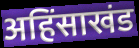
अहिंसाखंड